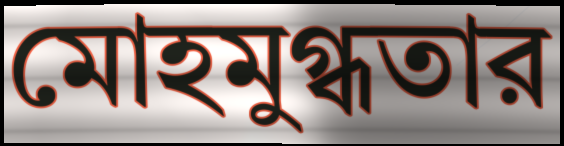
মোহমুগ্ধতার